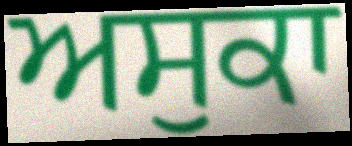
ਅਸੁਕਾ